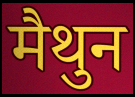
मैथुन